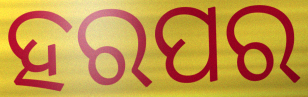
ହରପର